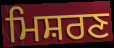
ਮਿਸ਼ਰਣ